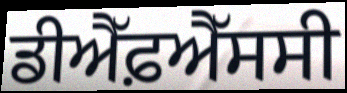
ਡੀਐੱਫ਼ਐੱਸਸੀ